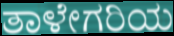
ತಾಳೇಗರಿಯ